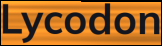
Lycodon